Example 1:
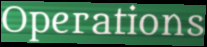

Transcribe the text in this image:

Operations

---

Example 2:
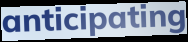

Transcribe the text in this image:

anticipating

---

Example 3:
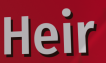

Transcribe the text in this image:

Heir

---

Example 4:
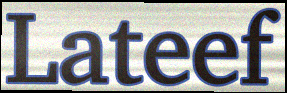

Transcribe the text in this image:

Lateef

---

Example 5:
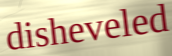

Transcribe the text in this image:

disheveled